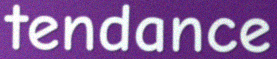
tendance